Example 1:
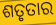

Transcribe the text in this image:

ଶତୃତାର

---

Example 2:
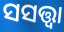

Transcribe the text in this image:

ସସତ୍ତ୍ୱା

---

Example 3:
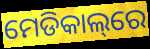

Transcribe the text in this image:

ମେଡିକାଲ୍‌ରେ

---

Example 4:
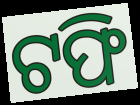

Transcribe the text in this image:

ଟଫି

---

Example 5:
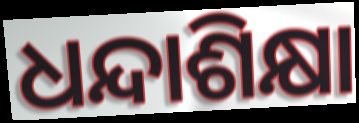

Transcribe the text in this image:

ଧନ୍ଦାଶିକ୍ଷା